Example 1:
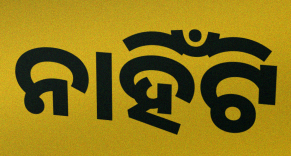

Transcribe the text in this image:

ନାହିଁଟି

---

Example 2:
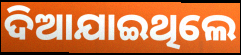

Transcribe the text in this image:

ଦିଆଯାଇଥିଲେ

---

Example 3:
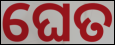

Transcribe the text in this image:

ଘେତ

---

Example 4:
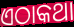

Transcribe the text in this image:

ଏଠାକଥା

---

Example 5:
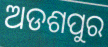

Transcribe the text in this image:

ଅଡଶପୁର